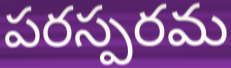
పరస్పరమ